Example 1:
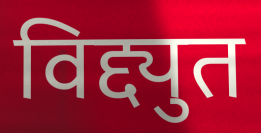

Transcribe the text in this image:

विद्द्युत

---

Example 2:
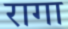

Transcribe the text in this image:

रागा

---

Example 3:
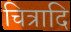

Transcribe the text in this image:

चित्रादि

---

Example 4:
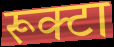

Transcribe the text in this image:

रूक्टा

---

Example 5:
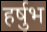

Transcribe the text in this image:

हर्षुभ